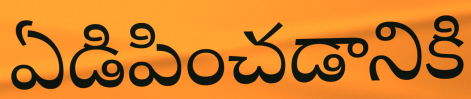
ఏడిపించడానికి